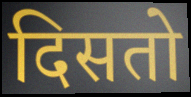
दिसतो